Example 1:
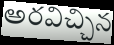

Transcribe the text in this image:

అరవిచ్చిన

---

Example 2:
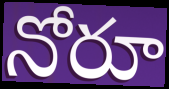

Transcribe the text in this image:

నోరూ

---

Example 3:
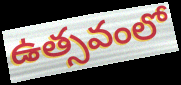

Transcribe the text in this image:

ఉత్సవంలో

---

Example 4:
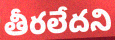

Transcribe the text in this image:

తీరలేదని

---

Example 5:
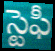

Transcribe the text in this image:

స్టెఫీ